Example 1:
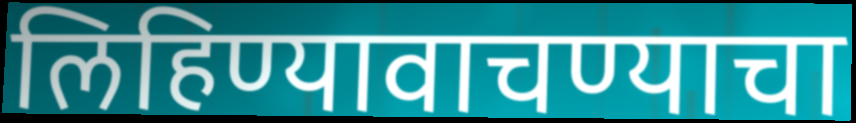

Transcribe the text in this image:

लिहिण्यावाचण्याचा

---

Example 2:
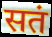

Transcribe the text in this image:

सतं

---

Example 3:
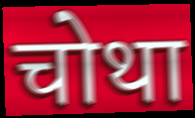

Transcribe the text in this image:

चोथा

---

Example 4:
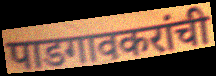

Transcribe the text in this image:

पाडगावकरांची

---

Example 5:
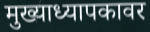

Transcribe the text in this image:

मुख्याध्यापकावर